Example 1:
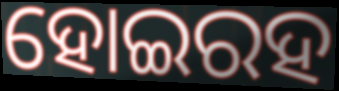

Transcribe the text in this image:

ହୋଇରହ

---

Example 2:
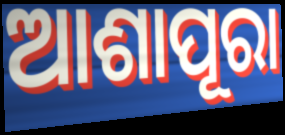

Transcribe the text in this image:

ଆଶାପୂରା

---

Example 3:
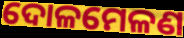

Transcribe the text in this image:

ଦୋଳମେଳଣ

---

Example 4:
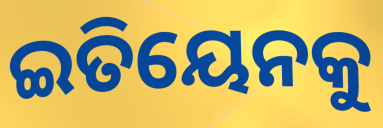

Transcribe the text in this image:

ଇତିୟେନକୁ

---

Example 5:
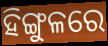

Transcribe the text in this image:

ହିଙ୍ଗୁଳରେ